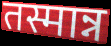
तस्मान्न